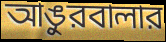
আঙুরবালার